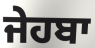
ਜੇਹਬਾ